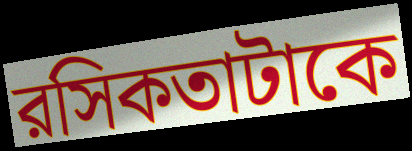
রসিকতাটাকে